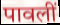
पावलीं